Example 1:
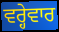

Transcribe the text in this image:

ਵਰ੍ਹੇਵਾਰ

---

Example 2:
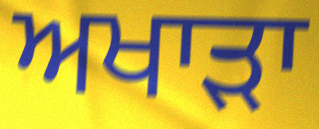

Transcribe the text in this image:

ਅਖਾੜਾ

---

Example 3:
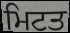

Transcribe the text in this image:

ਮਿਟਤ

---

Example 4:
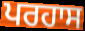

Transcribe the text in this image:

ਪਰਹਾਸ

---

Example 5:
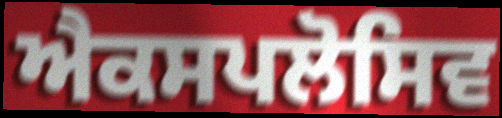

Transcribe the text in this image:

ਐਕਸਪਲੋਸਿਵ